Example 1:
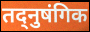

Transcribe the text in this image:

तद्नुषंगिक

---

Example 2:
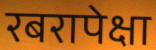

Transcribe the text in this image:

रबरापेक्षा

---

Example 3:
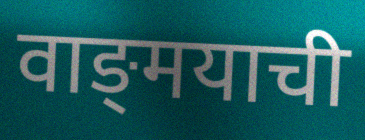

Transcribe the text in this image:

वाङ्मयाची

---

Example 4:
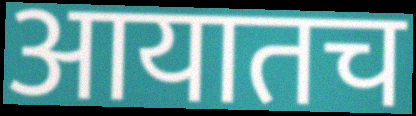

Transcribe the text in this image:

आयातच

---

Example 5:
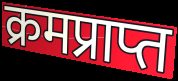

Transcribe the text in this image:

क्रमप्राप्‍त